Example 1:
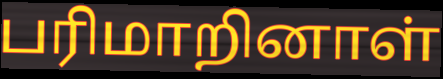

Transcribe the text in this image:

பரிமாறினாள்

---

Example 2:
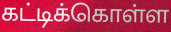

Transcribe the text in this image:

கட்டிக்கொள்ள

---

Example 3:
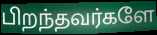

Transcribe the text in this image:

பிறந்தவர்களே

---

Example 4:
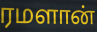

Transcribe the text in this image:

ரமளான்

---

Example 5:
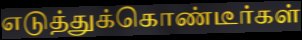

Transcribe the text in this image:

எடுத்துக்கொண்டீர்கள்